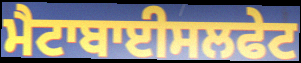
ਮੈਟਾਬਾਈਸਲਫੇਟ